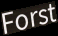
Forst